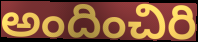
అందించిరి